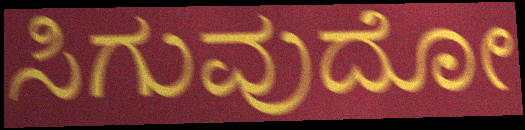
ಸಿಗುವುದೋ